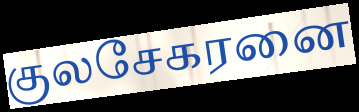
குலசேகரனை